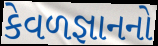
કેવળજ્ઞાનનો